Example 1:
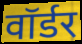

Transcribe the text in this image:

वॉर्डर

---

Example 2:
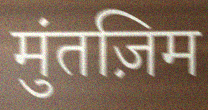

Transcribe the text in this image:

मुंतज़िम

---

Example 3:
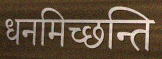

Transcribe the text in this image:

धनमिच्छन्ति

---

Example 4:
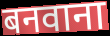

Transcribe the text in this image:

बनवाना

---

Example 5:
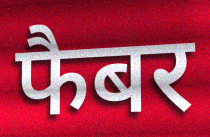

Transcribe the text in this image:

फैबर